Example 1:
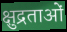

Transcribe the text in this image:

क्षुद्रताओं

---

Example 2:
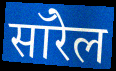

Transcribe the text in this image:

सॉरेल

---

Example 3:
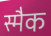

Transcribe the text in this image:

स्मैक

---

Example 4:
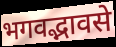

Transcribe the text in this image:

भगवद्भावसे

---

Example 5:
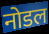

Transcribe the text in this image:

नोडल